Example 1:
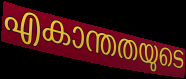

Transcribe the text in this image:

എകാന്തതയുടെ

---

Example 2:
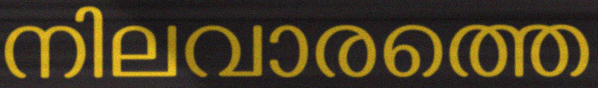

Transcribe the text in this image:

നിലവാരത്തെ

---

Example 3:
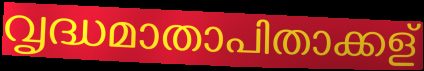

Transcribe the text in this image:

വൃദ്ധമാതാപിതാക്കള്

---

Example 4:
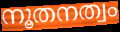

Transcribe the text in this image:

നൂതനത്വം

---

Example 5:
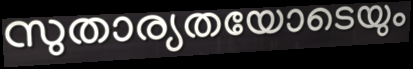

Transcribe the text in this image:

സുതാര്യതയോടെയും